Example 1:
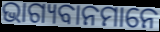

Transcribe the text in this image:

ଭାଗ୍ୟବାନମାନେ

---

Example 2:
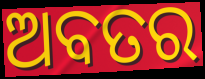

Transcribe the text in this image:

ଅବତର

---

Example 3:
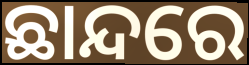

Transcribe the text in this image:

ଛାନ୍ଦରେ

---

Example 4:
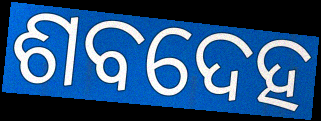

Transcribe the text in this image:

ଶବଦେହ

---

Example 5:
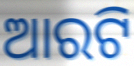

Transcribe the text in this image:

ଆରଟି